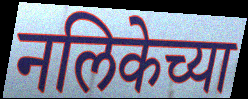
नलिकेच्या